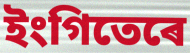
ইংগিতেৰে